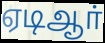
ஏடிஆர்